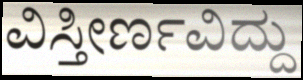
ವಿಸ್ತೀರ್ಣವಿದ್ದು